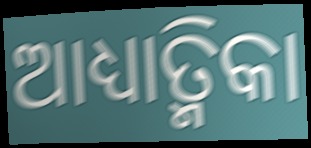
ଆଧ୍ୟାତ୍ମିକା